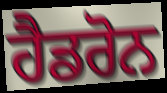
ਹੈਡਰੋਨ